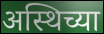
अस्थिच्या